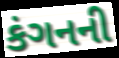
કંગનની